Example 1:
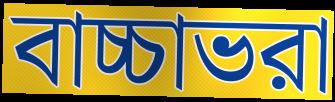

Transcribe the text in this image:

বাচ্চাভরা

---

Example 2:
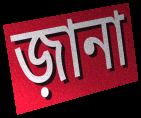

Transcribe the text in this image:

জ়ানা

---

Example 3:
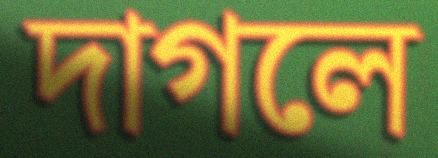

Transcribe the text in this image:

দাগলে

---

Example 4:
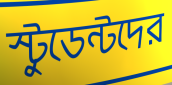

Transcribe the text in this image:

স্টুডেন্টদের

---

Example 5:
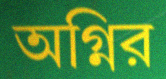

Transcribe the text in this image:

অগ্নির